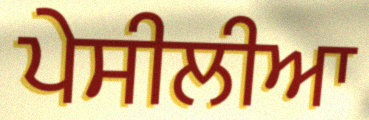
ਪੇਸੀਲੀਆ